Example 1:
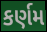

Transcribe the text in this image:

કર્ણમ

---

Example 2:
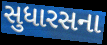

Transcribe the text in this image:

સુધારસના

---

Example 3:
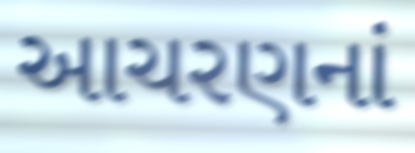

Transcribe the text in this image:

આચરણનાં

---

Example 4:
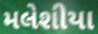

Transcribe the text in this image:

મલેશીયા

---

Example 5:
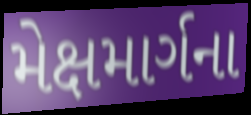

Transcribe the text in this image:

મેક્ષમાર્ગના